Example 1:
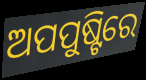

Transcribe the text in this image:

ଅପପୁଷ୍ଟିରେ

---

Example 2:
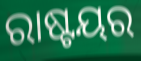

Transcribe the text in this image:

ରାଷ୍ଟୟର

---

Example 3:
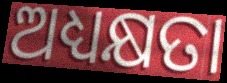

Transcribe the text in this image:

ଅଧ୍ୟକ୍ଷତା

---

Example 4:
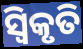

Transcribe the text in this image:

ସ୍ଵିକୃତି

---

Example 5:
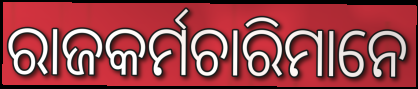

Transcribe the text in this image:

ରାଜକର୍ମଚାରିମାନେ